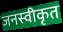
जनस्वीकृत